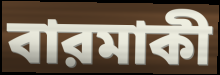
বারমাকী